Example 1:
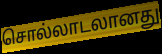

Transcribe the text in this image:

சொல்லாடலானது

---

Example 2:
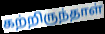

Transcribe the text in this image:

கற்றிருந்தாள்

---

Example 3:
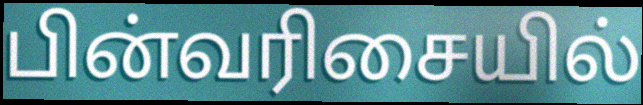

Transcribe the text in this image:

பின்வரிசையில்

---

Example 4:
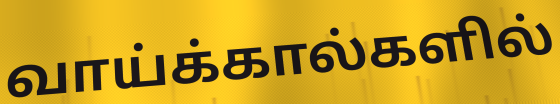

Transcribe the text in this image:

வாய்க்கால்களில்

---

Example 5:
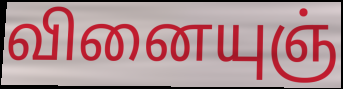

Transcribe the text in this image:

வினையுஞ்